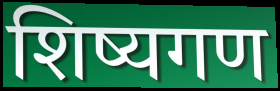
शिष्यगण